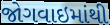
જોગવાઇમાંથી